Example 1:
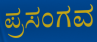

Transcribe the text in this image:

ಪ್ರಸಂಗವ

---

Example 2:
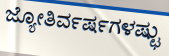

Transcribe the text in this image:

ಜ್ಯೋತಿರ್ವರ್ಷಗಳಷ್ಟು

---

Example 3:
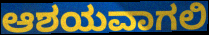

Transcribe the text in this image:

ಆಶಯವಾಗಲಿ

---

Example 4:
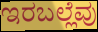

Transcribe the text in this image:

ಇರಬಲ್ಲೆವು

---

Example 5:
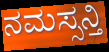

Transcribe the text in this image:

ನಮಸ್ಸನ್ತಿ